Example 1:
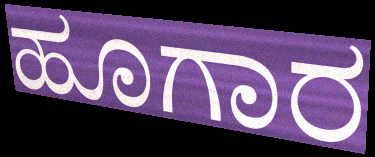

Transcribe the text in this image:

ಹೂಗಾರ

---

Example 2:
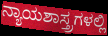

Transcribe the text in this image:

ನ್ಯಾಯಶಾಸ್ತ್ರಗಳಲ್ಲಿ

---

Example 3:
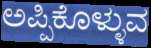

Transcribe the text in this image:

ಅಪ್ಪಿಕೊಳ್ಳುವ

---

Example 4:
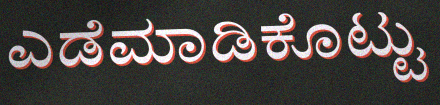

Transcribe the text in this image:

ಎಡೆಮಾಡಿಕೊಟ್ಟು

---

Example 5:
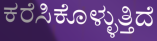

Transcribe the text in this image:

ಕರೆಸಿಕೊಳ್ಳುತ್ತಿದೆ